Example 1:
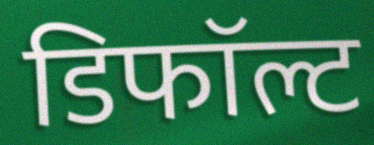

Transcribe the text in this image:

डिफॉल्ट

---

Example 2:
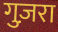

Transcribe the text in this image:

गुज़रा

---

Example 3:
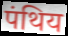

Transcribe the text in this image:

पंथिय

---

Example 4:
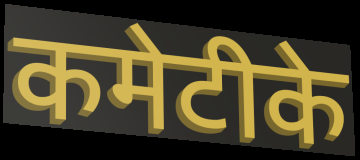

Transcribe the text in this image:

कमेटीके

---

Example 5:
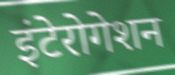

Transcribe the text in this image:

इंटेरोगेशन